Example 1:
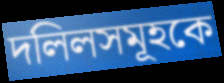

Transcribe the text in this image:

দলিলসমূহকে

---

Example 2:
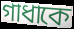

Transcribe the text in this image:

গাধাকে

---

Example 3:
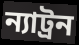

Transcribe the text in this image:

ন্যাট্রন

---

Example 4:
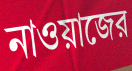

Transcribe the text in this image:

নাওয়াজের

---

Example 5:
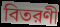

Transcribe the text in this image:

বিতরণী